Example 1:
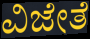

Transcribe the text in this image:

ವಿಜೇತೆ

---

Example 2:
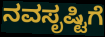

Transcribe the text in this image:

ನವಸೃಷ್ಟಿಗೆ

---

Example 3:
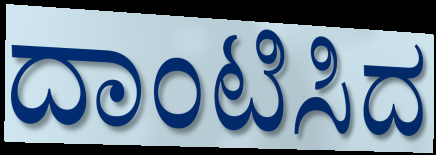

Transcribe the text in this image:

ದಾಂಟಿಸಿದ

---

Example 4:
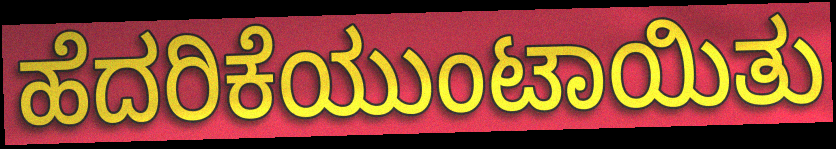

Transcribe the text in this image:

ಹೆದರಿಕೆಯುಂಟಾಯಿತು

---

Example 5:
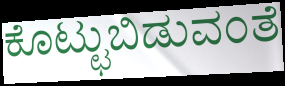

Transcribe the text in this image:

ಕೊಟ್ಟುಬಿಡುವಂತೆ